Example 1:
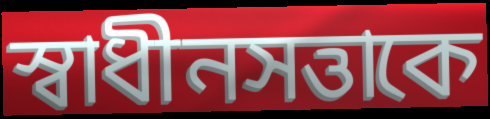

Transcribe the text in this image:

স্বাধীনসত্তাকে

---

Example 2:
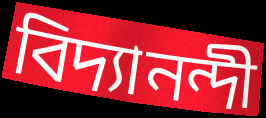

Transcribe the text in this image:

বিদ্যানন্দী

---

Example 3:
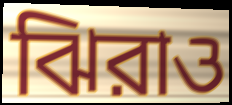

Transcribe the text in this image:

ঝিরাও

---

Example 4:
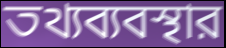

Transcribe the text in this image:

তথ্যব্যবস্থার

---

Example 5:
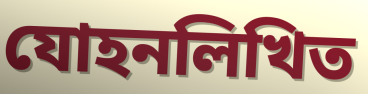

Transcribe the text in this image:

যোহনলিখিত